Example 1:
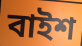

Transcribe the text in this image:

বাইশ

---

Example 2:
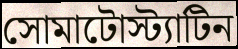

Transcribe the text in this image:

সোমাটোস্ট্যাটিন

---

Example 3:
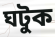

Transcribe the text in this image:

ঘটুক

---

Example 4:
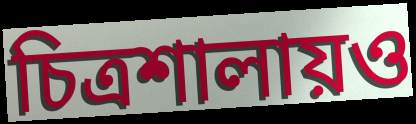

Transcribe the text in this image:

চিত্রশালায়ও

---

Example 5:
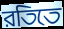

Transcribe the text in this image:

রতিতে